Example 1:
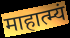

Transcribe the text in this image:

माहात्म्यं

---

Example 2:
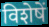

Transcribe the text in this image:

विशेषें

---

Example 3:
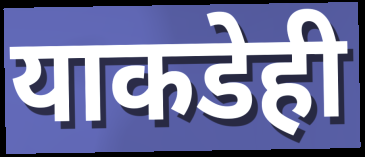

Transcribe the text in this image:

याकडेही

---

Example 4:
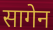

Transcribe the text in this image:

सागेन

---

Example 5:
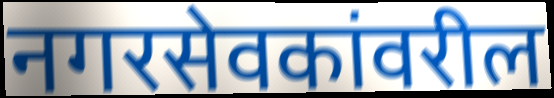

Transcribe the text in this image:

नगरसेवकांवरील